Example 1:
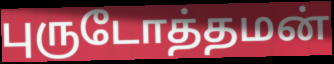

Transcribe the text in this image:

புருடோத்தமன்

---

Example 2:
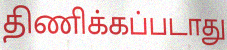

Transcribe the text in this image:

திணிக்கப்படாது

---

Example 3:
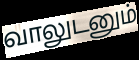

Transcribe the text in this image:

வாலுடனும்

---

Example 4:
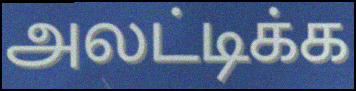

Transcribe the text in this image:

அலட்டிக்க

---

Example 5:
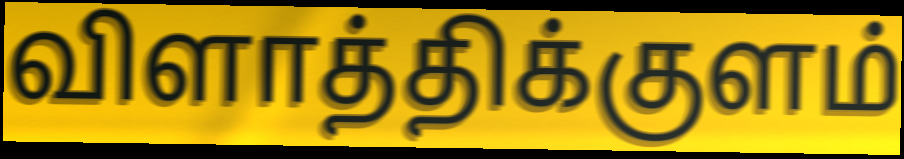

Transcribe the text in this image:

விளாத்திக்குளம்